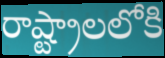
రాష్ట్రాలలోకి